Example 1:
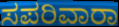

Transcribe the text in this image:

ಸಪರಿವಾರಾ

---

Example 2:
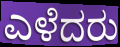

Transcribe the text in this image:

ಎಳೆದರು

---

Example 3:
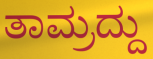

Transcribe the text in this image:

ತಾಮ್ರದ್ದು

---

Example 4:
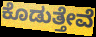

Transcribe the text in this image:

ಕೊಡುತ್ತೇವೆ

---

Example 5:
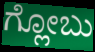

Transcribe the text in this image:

ಗ್ಲೋಬು